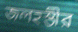
জলহস্তীর